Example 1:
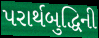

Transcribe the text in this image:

પરાર્થબુદ્ધિની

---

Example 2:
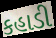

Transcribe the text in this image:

કહાડી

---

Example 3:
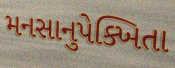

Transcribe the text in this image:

મનસાનુપેક્ખિતા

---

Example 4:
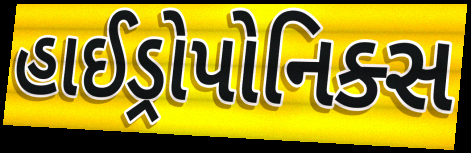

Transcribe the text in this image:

હાઈડ્રોપોનિક્સ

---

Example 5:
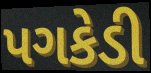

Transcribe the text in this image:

પગકેડી